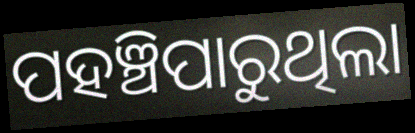
ପହଞ୍ଚିପାରୁଥିଲା